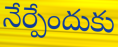
నేర్పేందుకు